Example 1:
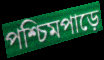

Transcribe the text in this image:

পশ্চিমপাড়ে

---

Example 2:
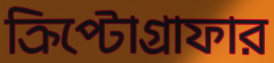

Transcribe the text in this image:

ক্রিপ্টোগ্রাফার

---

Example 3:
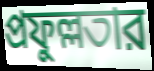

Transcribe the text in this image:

প্রফুল্লতার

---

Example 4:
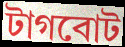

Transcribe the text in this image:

টাগবোট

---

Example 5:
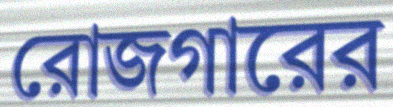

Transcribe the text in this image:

রোজগারের